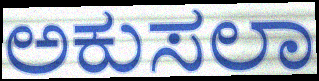
ಅಕುಸಲಾ